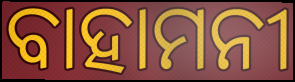
ବାହାମନୀ